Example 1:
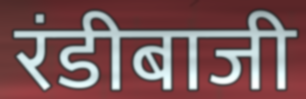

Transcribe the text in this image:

रंडीबाजी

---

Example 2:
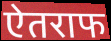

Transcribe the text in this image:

ऐतराफ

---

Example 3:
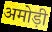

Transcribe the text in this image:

अमोड़ी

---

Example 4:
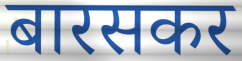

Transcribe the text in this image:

बारसकर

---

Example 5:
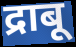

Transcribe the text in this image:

द्राबू